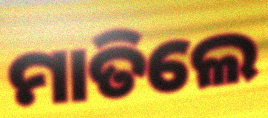
ମାତିଲେ